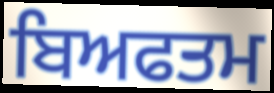
ਬਿਅਫਤਮ